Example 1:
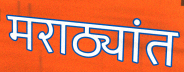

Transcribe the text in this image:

मराठ्यांत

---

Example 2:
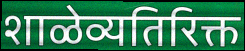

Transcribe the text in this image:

शाळेव्यतिरिक्त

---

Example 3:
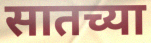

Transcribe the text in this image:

सातच्या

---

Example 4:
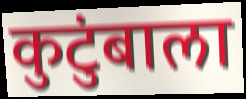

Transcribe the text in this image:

कुटुंबाला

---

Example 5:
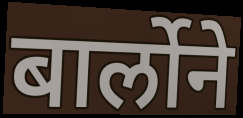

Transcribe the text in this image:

बार्लोने